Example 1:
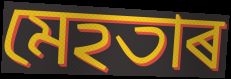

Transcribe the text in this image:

মেহতাৰ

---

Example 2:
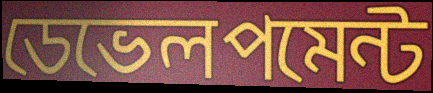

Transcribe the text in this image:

ডেভেলপমেন্ট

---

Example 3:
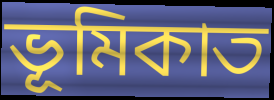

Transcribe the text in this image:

ভূমিকাত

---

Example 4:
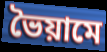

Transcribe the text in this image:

ভৈয়ামে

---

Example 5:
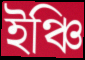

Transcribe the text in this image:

ইঞ্চি